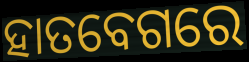
ହାତବେଗରେ